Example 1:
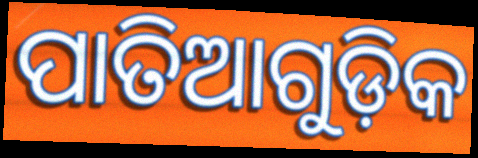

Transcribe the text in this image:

ପାତିଆଗୁଡ଼ିକ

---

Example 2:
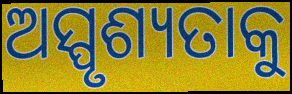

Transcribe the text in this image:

ଅସ୍ପୃଶ୍ୟତାକୁ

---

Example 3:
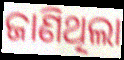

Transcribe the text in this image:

ଜାଣିଥିଲା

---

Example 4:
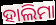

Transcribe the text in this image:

ହାଲିମା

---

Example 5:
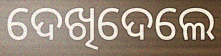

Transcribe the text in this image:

ଦେଖିଦେଲେ